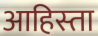
आहिस्‍ता